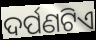
ଦର୍ପଣଟିଏ